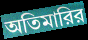
অতিমারির